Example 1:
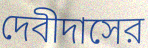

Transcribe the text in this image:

দেবীদাসের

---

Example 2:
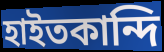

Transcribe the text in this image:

হাইতকান্দি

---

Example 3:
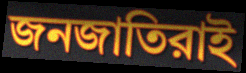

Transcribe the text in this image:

জনজাতিরাই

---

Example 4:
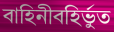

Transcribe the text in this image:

বাহিনীবহির্ভুত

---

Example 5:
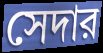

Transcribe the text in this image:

সেদার